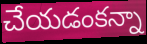
చేయడంకన్నా